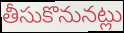
తీసుకొనునట్లు